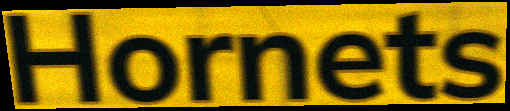
Hornets